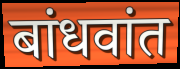
बांधवांत